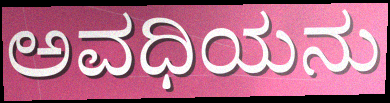
ಅವಧಿಯನು